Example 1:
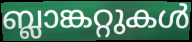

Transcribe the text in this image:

ബ്ലാങ്കറ്റുകൾ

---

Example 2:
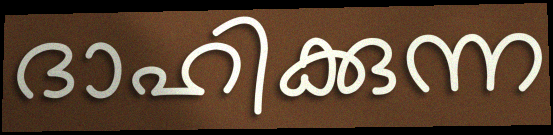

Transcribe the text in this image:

ദാഹിക്കുന്ന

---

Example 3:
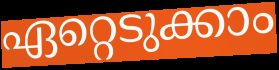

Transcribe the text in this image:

ഏറ്റെടുക്കാം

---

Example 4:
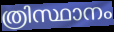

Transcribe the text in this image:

ത്രിസ്ഥാനം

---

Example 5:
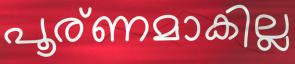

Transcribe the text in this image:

പൂര്ണമാകില്ല